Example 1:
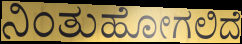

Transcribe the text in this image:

ನಿಂತುಹೋಗಲಿದೆ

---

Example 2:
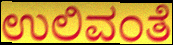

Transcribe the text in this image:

ಉಲಿವಂತೆ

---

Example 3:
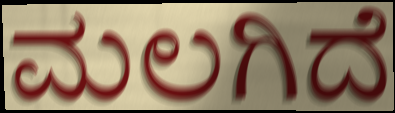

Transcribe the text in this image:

ಮಲಗಿದೆ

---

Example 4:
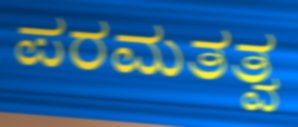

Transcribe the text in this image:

ಪರಮತತ್ವ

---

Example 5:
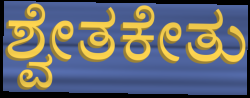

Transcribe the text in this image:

ಶ್ವೇತಕೇತು